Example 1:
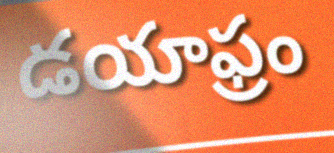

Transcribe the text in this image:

డయాఫ్రం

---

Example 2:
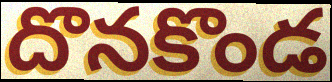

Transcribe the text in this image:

దొనకొండ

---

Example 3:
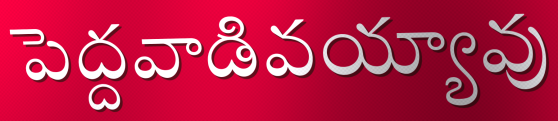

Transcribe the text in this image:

పెద్దవాడివయ్యావు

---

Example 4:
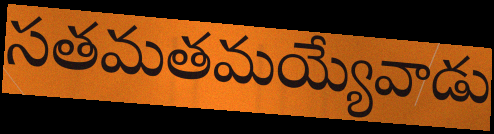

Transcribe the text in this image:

సతమతమయ్యేవాడు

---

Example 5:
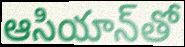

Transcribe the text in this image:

ఆసియాన్‌తో